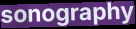
sonography